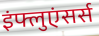
इंफ्लुएंसर्स